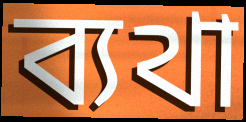
ব্যথা